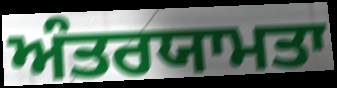
ਅੰਤਰਯਾਮਤਾ